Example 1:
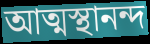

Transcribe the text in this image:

আত্মস্থানন্দ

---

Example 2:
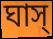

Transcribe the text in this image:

ঘাস্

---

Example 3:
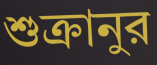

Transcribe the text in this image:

শুক্রানুর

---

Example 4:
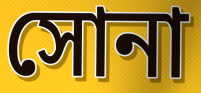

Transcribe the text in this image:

সোনা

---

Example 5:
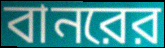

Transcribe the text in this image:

বানরের